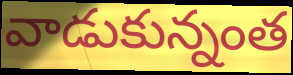
వాడుకున్నంత